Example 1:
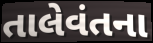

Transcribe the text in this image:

તાલેવંતના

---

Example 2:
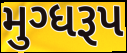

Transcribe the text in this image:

મુગ્ધરૂપ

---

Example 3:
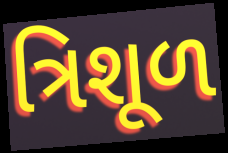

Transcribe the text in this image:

ત્રિશૂળ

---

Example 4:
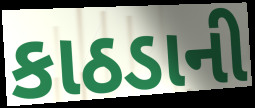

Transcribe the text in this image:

કાઠડાની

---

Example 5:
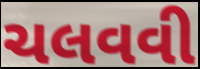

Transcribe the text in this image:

ચલવવી